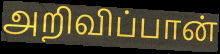
அறிவிப்பான்